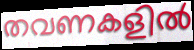
തവണകളിൽ